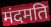
मंदमति